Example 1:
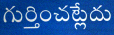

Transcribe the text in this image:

గుర్తించట్లేదు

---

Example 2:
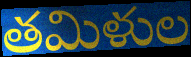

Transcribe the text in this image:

తమిళుల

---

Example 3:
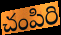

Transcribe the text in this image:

చంపిరి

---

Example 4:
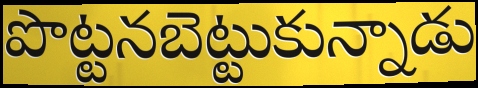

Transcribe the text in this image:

పొట్టనబెట్టుకున్నాడు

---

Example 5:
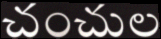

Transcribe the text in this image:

చంచుల